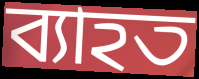
ব্যাহত